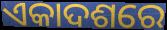
ଏକାଦଶରେ